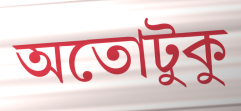
অতোটুকু